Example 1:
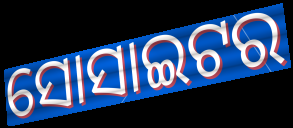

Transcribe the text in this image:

ସୋସାଇଟର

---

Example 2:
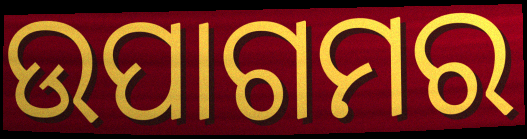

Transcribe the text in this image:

ଉପାଗମର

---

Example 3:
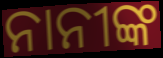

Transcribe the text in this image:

ନାନୀଙ୍କ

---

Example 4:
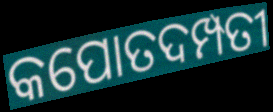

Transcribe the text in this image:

କପୋତଦମ୍ପତୀ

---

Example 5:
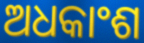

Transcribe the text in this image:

ଅଧକାଂଶ